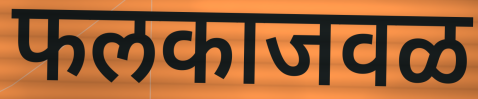
फलकाजवळ